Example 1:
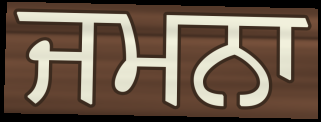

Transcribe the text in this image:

ਜਮਨਾ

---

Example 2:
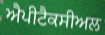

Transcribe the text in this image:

ਐਪੀਟੈਕਸੀਅਲ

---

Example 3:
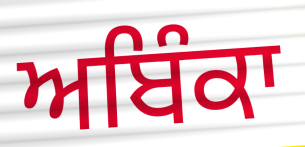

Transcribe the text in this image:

ਅਬਿੰਕਾ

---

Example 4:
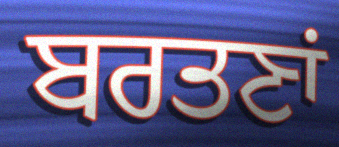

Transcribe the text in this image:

ਬਰਤਣਾਂ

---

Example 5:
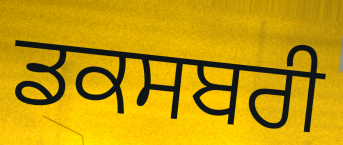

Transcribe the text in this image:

ਡਕਸਬਰੀ